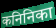
कनिनिका